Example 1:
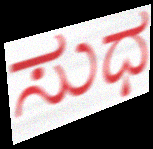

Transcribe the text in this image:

ಸುಧ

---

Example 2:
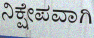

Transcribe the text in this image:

ನಿಕ್ಷೇಪವಾಗಿ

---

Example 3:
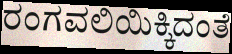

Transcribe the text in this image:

ರಂಗವಲಿಯಿಕ್ಕಿದಂತೆ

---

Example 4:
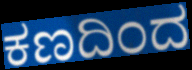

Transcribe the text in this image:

ಕಣದಿಂದ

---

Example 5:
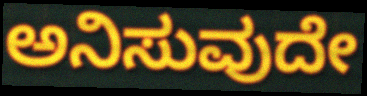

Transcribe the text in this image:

ಅನಿಸುವುದೇ